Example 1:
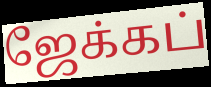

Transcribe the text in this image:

ஜேக்கப்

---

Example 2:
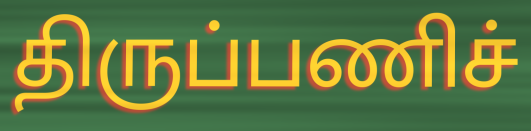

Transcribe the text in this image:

திருப்பணிச்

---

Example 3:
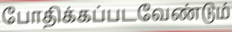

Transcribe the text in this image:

போதிக்கப்படவேண்டும்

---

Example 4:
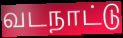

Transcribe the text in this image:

வடநாட்டு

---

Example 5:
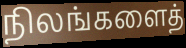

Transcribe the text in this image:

நிலங்களைத்